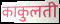
काकुलती